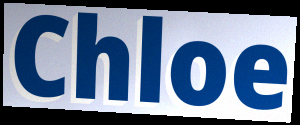
Chloe